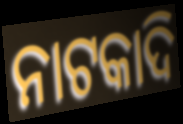
ନାଟକାଦି